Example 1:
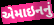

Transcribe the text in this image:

એમાઇનનું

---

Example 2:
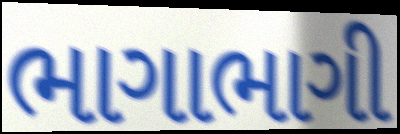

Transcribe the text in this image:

ભાગાભાગી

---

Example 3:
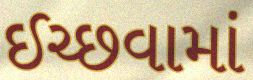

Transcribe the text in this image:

ઈચ્છવામાં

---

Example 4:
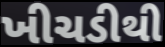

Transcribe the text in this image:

ખીચડીથી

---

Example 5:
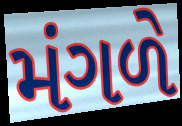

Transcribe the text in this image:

મંગળે